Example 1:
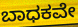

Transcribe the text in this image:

ಬಾಧಕವೇ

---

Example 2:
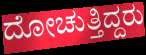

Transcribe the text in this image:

ದೋಚುತ್ತಿದ್ದರು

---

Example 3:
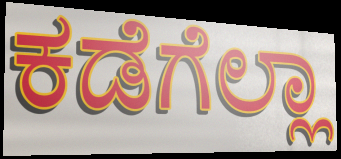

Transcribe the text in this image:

ಕಡೆಗೆಲ್ಲಾ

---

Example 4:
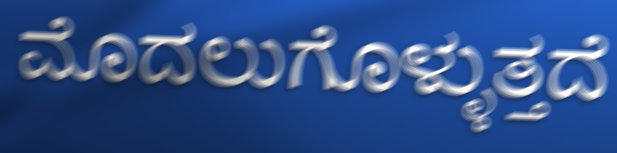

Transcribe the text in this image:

ಮೊದಲುಗೊಳ್ಳುತ್ತದೆ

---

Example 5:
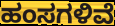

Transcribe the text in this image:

ಹಂಸಗಳಿವೆ